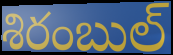
శిరంబుల్